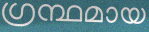
ഗ്രന്ഥമായ